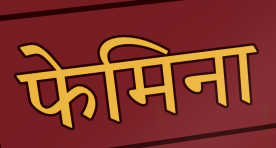
फेमिना